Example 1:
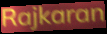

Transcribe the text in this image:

Rajkaran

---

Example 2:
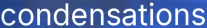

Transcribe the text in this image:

condensations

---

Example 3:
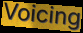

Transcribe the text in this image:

Voicing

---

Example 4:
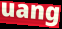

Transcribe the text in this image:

uang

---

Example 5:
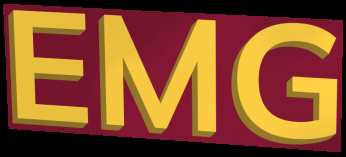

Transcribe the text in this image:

EMG